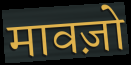
मावज़ो